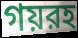
গয়রহ